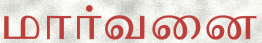
மார்வனை